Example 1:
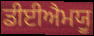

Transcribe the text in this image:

ਡੀਈਐਮਯੂ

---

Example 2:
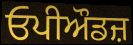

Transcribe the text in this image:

ਓਪੀਔਡਜ਼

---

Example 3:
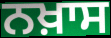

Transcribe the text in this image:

ਨਖ਼ਾਸ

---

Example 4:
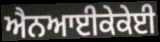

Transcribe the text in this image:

ਐਨਆਈਕੇਕੇਈ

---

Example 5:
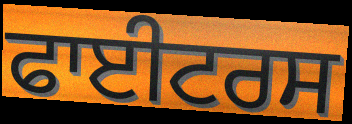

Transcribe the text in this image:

ਫਾਈਟਰਸ